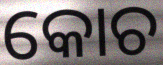
କୋଚ